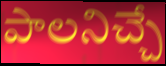
పాలనిచ్చే